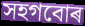
সহগবোৰ